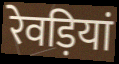
रेवड़ियां